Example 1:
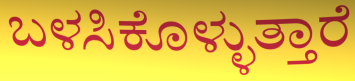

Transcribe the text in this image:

ಬಳಸಿಕೊಳ್ಳುತ್ತಾರೆ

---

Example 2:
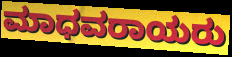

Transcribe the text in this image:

ಮಾಧವರಾಯರು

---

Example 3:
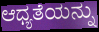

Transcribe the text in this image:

ಆಧ್ಯತೆಯನ್ನು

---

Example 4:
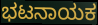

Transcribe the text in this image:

ಭಟನಾಯಕ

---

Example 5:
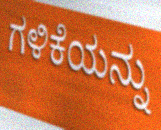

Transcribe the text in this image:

ಗಳಿಕೆಯನ್ನು